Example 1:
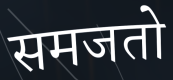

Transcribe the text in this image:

समजतो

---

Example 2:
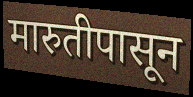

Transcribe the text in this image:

मारुतीपासून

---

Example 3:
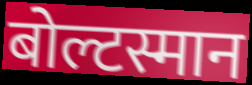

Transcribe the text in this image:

बोल्टस्मान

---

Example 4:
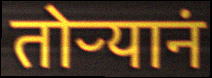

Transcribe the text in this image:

तोऱ्यानं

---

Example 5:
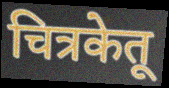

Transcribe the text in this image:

चित्रकेतू